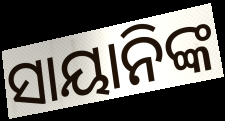
ସାୟାନିଙ୍କ